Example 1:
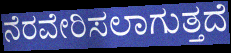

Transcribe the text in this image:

ನೆರವೇರಿಸಲಾಗುತ್ತದೆ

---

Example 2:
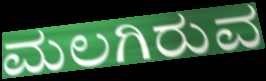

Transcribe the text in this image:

ಮಲಗಿರುವ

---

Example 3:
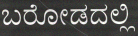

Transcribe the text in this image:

ಬರೋಡದಲ್ಲಿ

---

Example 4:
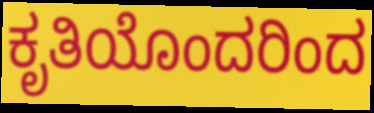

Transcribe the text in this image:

ಕೃತಿಯೊಂದರಿಂದ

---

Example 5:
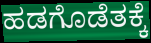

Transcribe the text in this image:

ಹಡಗೊಡೆತಕ್ಕೆ